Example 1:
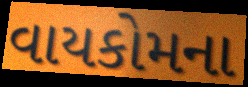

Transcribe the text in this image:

વાયકોમના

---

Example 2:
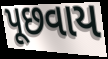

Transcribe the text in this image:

પૂછવાય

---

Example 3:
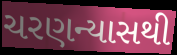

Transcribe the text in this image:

ચરણન્યાસથી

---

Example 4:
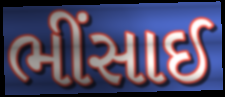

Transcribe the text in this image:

ભીંસાઈ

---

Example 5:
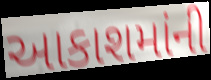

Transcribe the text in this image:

આકાશમાંની